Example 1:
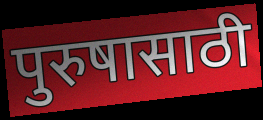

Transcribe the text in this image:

पुरुषासाठी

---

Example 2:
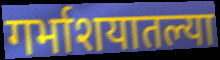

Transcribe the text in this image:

गर्भाशयातल्या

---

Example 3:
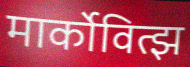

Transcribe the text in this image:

मार्कोवित्झ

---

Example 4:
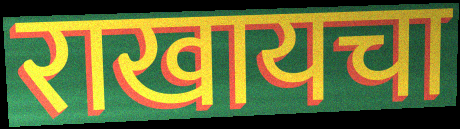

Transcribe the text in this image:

राखायचा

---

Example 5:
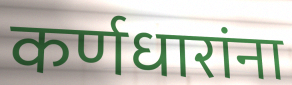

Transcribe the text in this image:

कर्णधारांना